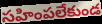
సహింపలేకుండ